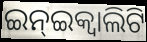
ଇନ୍ଇକ୍ଵାଲିଟି